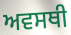
ਅਵਸਥੀ